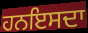
ਹਨਇਸਦਾ